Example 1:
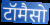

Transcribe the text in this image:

टॉमैसो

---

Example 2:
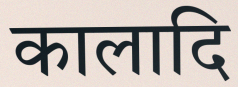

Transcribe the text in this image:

कालादि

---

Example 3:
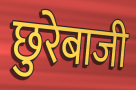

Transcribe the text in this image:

छुरेबाजी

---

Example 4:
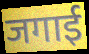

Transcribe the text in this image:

जगाई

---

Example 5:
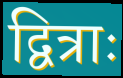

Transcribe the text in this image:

द्वित्राः